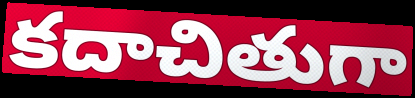
కదాచితుగా